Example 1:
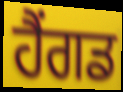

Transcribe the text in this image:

ਹੈਂਗਡ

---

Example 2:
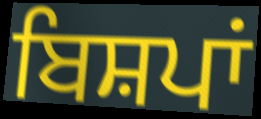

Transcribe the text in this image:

ਬਿਸ਼ਪਾਂ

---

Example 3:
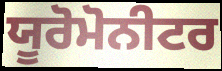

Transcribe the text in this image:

ਯੂਰੋਮੋਨੀਟਰ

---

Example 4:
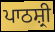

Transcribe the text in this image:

ਪਾਠਸ਼੍ਰੀ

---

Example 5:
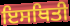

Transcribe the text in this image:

ਇਸਥਿਤੀ